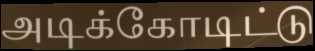
அடிக்கோடிட்டு